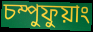
চম্পুফুয়াং